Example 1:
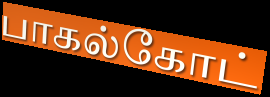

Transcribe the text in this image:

பாகல்கோட்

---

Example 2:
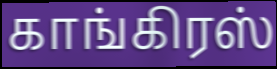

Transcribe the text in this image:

காங்கிரஸ்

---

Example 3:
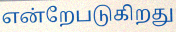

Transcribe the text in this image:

என்றேபடுகிறது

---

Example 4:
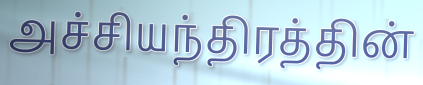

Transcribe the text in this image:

அச்சியந்திரத்தின்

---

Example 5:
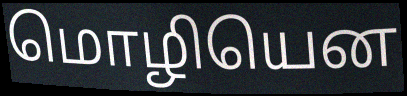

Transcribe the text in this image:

மொழியென